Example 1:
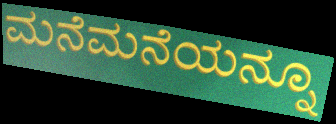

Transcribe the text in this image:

ಮನೆಮನೆಯನ್ನೂ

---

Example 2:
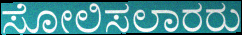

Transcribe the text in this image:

ಸೋಲಿಸಲಾರರು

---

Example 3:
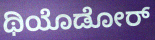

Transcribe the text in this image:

ಥಿಯೊಡೋರ್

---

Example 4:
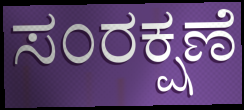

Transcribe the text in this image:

ಸಂರಕ್ಷಣೆ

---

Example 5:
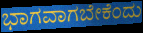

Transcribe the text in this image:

ಭಾಗವಾಗಬೇಕೆಂದು